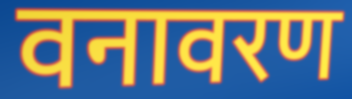
वनावरण